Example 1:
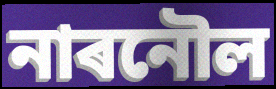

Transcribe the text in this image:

নাৰনৌল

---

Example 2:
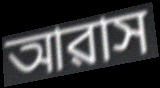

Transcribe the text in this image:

আৱাস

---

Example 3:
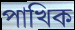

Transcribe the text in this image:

পাখিক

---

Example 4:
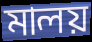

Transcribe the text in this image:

মালয়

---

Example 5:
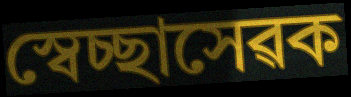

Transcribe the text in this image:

স্বেচ্ছাসেৱক